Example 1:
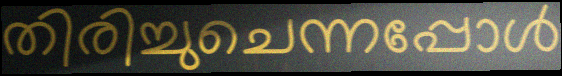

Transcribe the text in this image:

തിരിച്ചുചെന്നപ്പോൾ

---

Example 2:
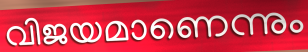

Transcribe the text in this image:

വിജയമാണെന്നും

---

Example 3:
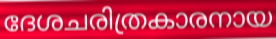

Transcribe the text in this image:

ദേശചരിത്രകാരനായ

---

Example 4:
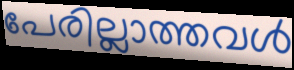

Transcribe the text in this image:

പേരില്ലാത്തവൾ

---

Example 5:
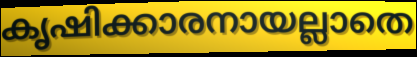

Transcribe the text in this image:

കൃഷിക്കാരനായല്ലാതെ